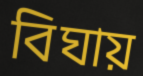
বিঘায়